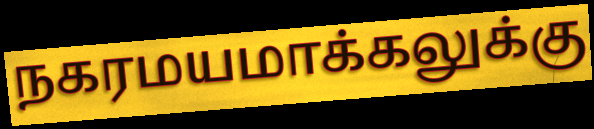
நகரமயமாக்கலுக்கு